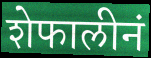
शेफालीनं